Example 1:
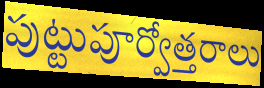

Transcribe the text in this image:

పుట్టుపూర్వోత్తరాలు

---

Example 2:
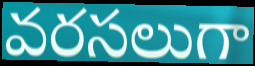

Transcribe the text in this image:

వరసలుగా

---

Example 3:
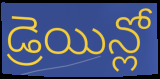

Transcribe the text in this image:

డ్రెయిన్లో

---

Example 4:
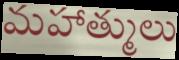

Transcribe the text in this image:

మహాత్ములు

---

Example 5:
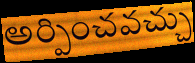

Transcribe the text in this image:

అర్పించవచ్చు